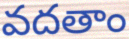
వదతాం